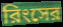
রিংসের